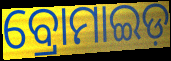
ବ୍ରୋମାଇଡ଼